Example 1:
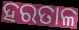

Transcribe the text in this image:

ହରତାଳ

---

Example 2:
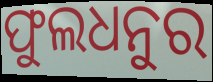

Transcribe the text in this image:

ଫୁଲଧନୁର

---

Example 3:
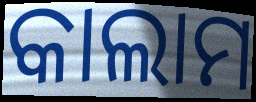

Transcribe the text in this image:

କାଲାମ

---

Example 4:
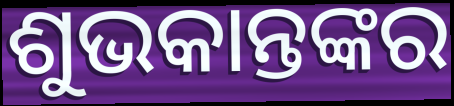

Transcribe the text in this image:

ଶୁଭକାନ୍ତଙ୍କର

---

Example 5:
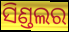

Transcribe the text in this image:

ସିଣ୍ଡଲର